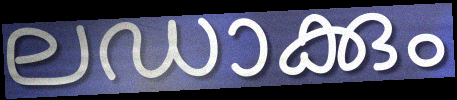
ലഡാക്കും